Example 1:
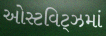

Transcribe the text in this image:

ઓસ્ટવિટ્ઝમાં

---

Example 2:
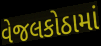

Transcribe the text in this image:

વેજલકોઠામાં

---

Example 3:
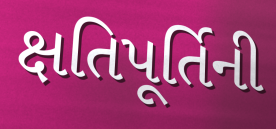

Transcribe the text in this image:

ક્ષતિપૂર્તિની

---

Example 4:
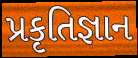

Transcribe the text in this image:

પ્રકૃતિજ્ઞાન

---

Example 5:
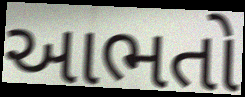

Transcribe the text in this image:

આભતો